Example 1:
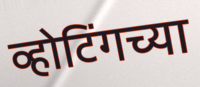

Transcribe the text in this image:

व्होटिंगच्या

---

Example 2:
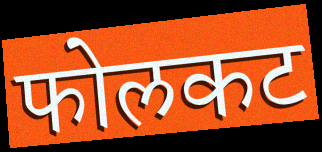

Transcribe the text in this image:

फोलकट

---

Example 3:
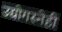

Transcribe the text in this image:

उद्योगस्नेही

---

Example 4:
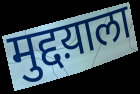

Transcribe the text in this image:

मुद्दय़ाला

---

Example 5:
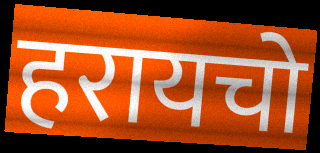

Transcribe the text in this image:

हरायचो